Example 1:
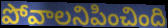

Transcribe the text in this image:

పోవాలనిపించింది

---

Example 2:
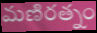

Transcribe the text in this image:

మణిరత్నం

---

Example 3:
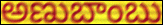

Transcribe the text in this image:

అణుబాంబు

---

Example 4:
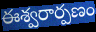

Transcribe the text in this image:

ఈశ్వరార్పణం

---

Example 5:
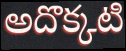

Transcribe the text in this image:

అదొక్కటి